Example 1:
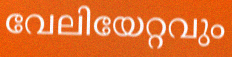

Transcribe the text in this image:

വേലിയേറ്റവും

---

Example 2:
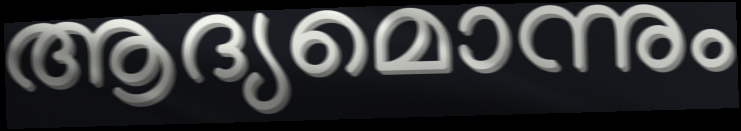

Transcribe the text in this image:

ആദ്യമൊന്നും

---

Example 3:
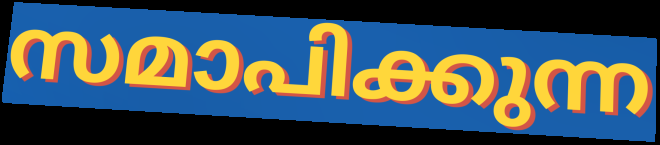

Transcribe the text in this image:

സമാപിക്കുന്ന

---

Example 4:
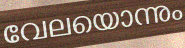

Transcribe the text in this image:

വേലയൊന്നും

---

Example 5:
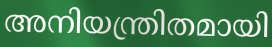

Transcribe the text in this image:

അനിയന്ത്രിതമായി